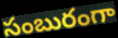
సంబురంగా